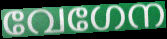
വേഗേന